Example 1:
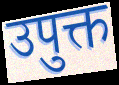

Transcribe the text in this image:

उपुक्त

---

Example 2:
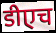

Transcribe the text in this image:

डीएच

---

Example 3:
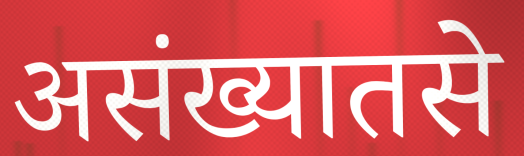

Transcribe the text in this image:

असंख्यातसे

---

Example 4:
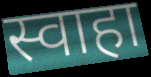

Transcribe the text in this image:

स्वाहा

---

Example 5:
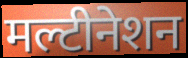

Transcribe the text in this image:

मल्टीनेशन